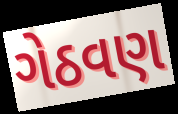
ગેઠવણ